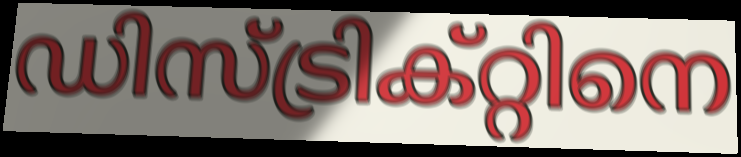
ഡിസ്ട്രിക്റ്റിനെ